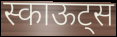
स्काऊट्स